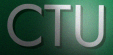
CTU